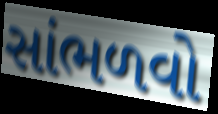
સાંભળવો